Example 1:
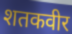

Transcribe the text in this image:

शतकवीर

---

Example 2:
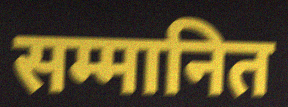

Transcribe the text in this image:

सम्मानित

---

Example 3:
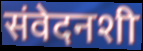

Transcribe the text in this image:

संवेदनशी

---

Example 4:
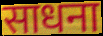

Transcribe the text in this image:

साधना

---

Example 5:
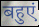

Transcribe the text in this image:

बहुएं